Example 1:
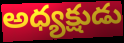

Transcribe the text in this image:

అధ్యక్షుడు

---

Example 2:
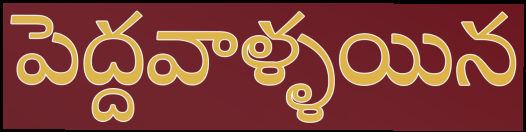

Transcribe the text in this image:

పెద్దవాళ్ళయిన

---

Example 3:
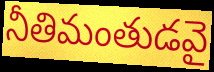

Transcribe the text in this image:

నీతిమంతుడవై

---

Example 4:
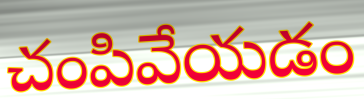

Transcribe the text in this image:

చంపివేయడం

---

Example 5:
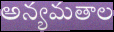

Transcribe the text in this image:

అన్యమతాల